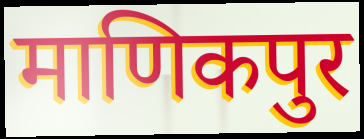
माणिकपुर